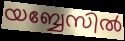
യബ്ബേസിൽ